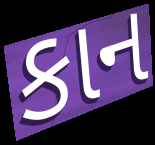
કાન